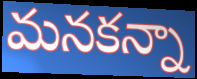
మనకన్నా